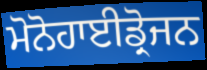
ਮੋਨੋਹਾਈਡ੍ਰੋਜਨ